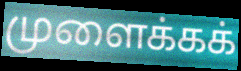
முளைக்கக்